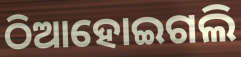
ଠିଆହୋଇଗଲି